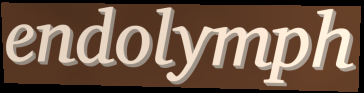
endolymph